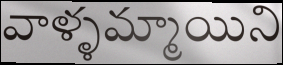
వాళ్ళమ్మాయిని